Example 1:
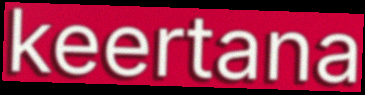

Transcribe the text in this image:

keertana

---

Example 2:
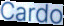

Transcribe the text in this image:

Cardo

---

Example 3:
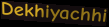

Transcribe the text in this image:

Dekhiyachhi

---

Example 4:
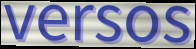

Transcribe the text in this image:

versos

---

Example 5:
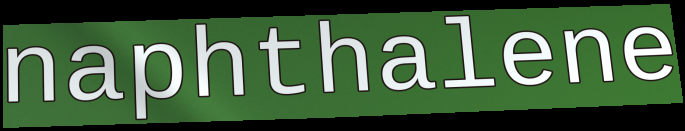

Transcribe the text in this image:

naphthalene